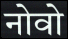
नोवो